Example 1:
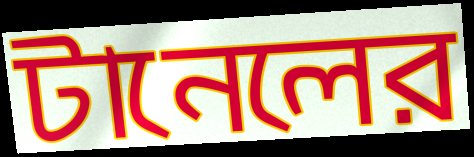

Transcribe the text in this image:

টানেলের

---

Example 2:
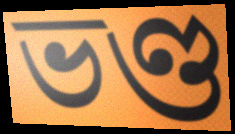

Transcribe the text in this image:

ভণ্ড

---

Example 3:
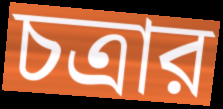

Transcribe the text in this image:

চত্রার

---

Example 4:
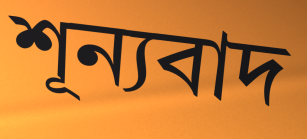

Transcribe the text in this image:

শূন্যবাদ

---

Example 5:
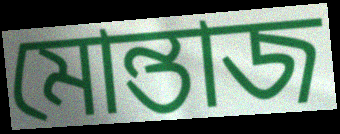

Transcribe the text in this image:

মোন্তাজ